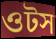
ওটস